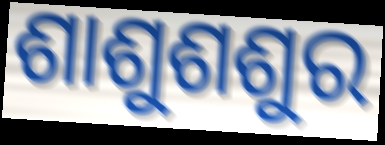
ଶାଶୁଶଶୁର